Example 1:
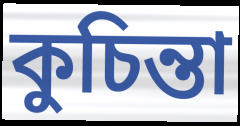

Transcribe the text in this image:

কুচিন্তা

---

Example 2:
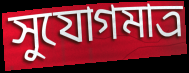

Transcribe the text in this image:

সুযোগমাত্র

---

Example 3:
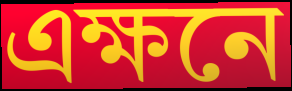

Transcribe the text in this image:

এক্ষনে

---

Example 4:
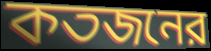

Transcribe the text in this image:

কতজনের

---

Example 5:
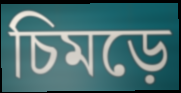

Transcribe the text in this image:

চিমড়ে